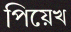
পিয়েখ